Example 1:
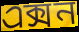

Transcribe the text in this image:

এক্সন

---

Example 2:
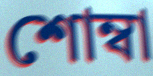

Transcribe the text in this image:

শোম্বা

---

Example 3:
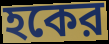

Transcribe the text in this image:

হকের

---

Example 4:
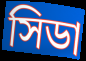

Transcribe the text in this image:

সিডা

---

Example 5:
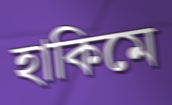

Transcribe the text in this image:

হাকিমে